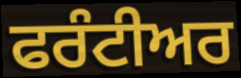
ਫਰੰਟੀਅਰ